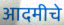
आदमीचे